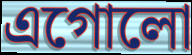
এগোলো